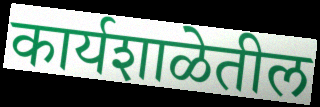
कार्यशाळेतील